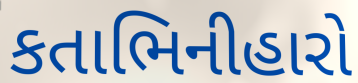
કતાભિનીહારો